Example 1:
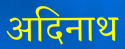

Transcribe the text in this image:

अदिनाथ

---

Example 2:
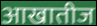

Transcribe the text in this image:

आखातीज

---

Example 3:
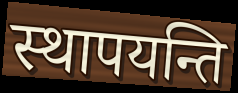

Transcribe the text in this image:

स्थापयन्ति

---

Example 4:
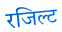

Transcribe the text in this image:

रजिल्ट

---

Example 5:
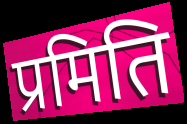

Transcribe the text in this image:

प्रमिति